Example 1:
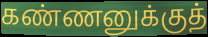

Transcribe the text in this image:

கண்ணனுக்குத்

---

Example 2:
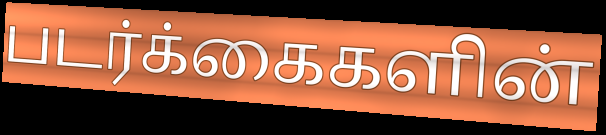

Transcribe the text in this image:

படர்க்கைகளின்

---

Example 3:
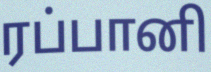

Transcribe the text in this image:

ரப்பானி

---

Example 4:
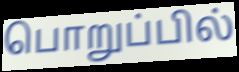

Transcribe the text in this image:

பொறுப்பில்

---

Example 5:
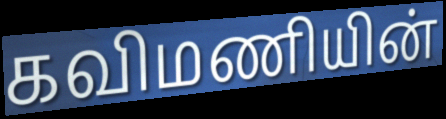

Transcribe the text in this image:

கவிமணியின்